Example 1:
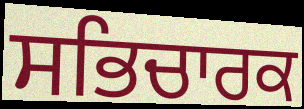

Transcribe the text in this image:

ਸਭਿਚਾਰਕ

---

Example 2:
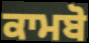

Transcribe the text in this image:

ਕਾਮਬੋ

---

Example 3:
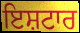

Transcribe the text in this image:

ਇਸ਼ਟਾਰ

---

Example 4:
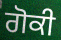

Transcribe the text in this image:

ਗੋਕੀ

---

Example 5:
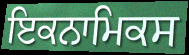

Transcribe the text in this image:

ਇਕਨਾਮਿਕਸ